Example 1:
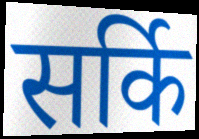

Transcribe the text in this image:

सर्कि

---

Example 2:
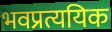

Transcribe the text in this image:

भवप्रत्ययिक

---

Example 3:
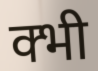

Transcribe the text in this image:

क्भी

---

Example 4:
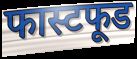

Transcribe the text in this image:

फास्‍टफूड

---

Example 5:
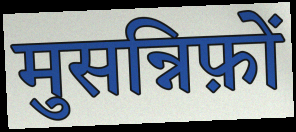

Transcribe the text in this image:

मुसन्निफ़ों